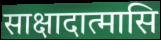
साक्षादात्मासि